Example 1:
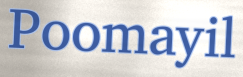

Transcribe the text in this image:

Poomayil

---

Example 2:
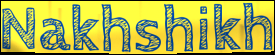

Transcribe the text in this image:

Nakhshikh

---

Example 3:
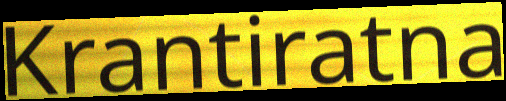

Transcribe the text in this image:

Krantiratna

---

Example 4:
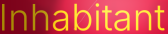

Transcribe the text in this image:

Inhabitant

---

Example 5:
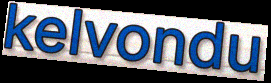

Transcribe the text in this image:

kelvondu